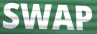
SWAP